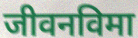
जीवनविमा